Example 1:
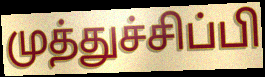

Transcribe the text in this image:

முத்துச்சிப்பி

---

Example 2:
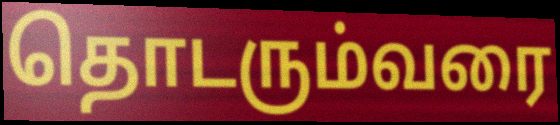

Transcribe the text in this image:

தொடரும்வரை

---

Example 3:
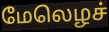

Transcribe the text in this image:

மேலெழச்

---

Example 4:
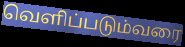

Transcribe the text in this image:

வெளிப்படும்வரை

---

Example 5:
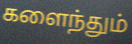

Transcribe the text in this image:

களைந்தும்